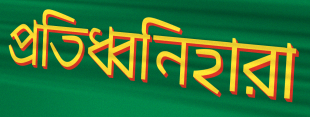
প্রতিধ্বনিহারা